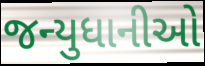
જન્યુધાનીઓ